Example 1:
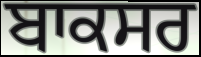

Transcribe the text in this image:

ਬਾਕਸਰ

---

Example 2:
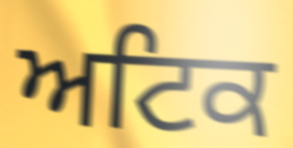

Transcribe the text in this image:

ਅਟਿਕ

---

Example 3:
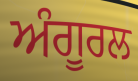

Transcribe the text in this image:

ਅੰਗੂਰਲ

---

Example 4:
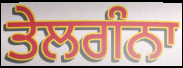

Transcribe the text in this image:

ਤੇਲਗੰਨਾ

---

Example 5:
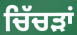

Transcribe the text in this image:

ਚਿੱਚੜਾਂ